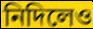
নিদিলেও